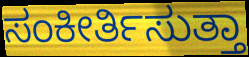
ಸಂಕೀರ್ತಿಸುತ್ತಾ